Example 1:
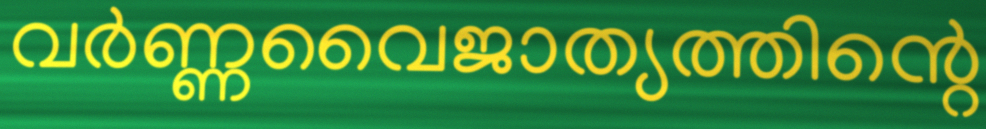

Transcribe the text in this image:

വർണ്ണവൈജാത്യത്തിന്റെ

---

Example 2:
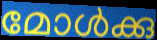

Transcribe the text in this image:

മോൾക്കു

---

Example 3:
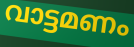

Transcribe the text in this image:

വാട്ടമണം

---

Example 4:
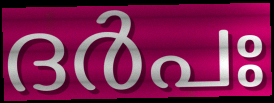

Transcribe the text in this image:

ദർപഃ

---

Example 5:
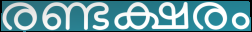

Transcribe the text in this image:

രണ്ടക്ഷരം